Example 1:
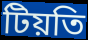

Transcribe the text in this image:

টিয়তি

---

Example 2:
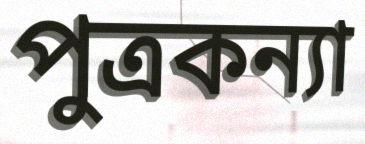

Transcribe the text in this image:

পুত্রকন্যা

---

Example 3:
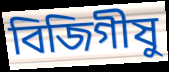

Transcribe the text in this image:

বিজিগীষু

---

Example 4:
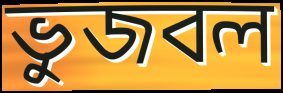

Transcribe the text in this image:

ভুজবল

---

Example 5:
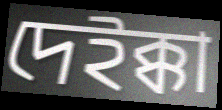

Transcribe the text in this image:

দেইক্কা